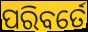
ପରିବର୍ତେ